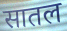
सातल